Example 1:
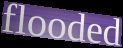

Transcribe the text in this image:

flooded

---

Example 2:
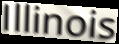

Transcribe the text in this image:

Illinois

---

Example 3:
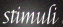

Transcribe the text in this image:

stimuli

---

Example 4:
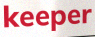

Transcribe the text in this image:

keeper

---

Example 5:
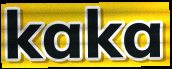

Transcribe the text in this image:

kaka